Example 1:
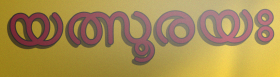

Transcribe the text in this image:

യത്സൂരയഃ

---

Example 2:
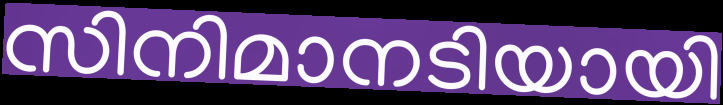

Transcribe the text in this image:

സിനിമാനടിയായി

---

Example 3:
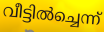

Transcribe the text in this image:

വീട്ടിൽച്ചെന്ന്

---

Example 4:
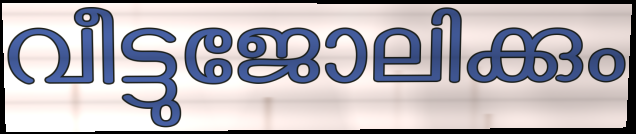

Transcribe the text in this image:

വീട്ടുജോലിക്കും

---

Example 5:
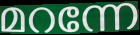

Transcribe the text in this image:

മറന്നേ